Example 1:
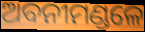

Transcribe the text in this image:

ଅବନୀମଣ୍ଡଳେ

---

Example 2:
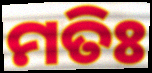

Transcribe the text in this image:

ମତିଃ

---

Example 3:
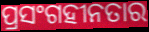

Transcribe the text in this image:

ପ୍ରସଂଗହୀନତାର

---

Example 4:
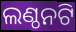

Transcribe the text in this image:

ଲଣ୍ଠନଟି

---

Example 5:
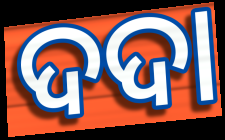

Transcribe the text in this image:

ଦଦା